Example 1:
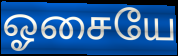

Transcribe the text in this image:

ஓசையே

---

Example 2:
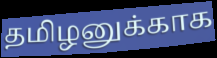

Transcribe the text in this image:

தமிழனுக்காக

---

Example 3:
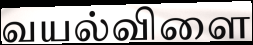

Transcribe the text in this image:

வயல்விளை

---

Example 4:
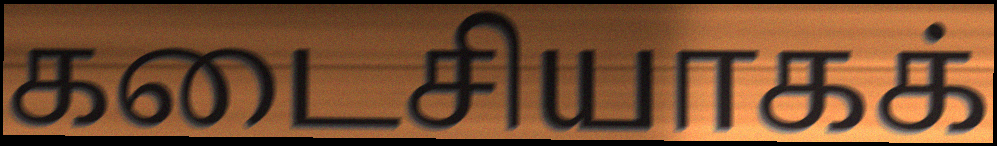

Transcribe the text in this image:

கடைசியாகக்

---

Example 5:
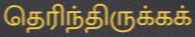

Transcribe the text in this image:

தெரிந்திருக்கக்